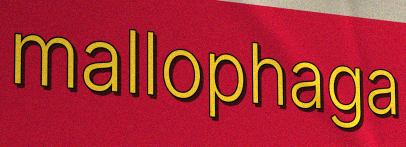
mallophaga